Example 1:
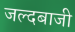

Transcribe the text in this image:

जल्दबाजी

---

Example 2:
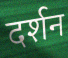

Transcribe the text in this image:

दर्शन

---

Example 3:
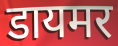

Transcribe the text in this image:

डायमर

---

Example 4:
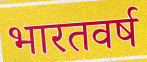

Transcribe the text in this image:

भारतवर्ष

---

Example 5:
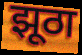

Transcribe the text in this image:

झूठा